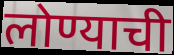
लोण्याची